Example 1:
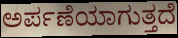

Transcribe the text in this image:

ಅರ್ಪಣೆಯಾಗುತ್ತದೆ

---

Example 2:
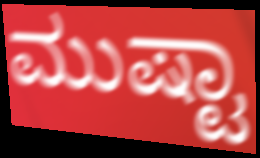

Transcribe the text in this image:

ಮುಷ್ಟಾ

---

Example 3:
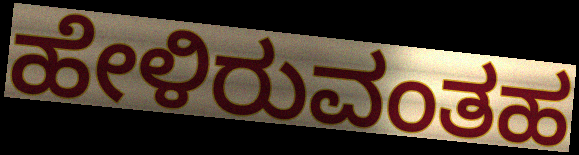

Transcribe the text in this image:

ಹೇಳಿರುವಂತಹ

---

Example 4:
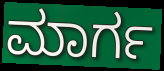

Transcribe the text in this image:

ಮಾರ್ಗ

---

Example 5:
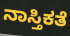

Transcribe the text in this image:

ನಾಸ್ತಿಕತೆ